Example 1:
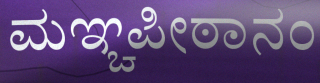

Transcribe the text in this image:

ಮಞ್ಚಪೀಠಾನಂ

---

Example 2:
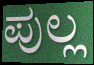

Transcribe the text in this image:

ಪುಲ್ಲ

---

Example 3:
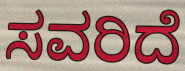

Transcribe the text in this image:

ಸವರಿದೆ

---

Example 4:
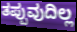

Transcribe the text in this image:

ತಪ್ಪುವುದಿಲ್ಲ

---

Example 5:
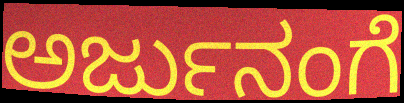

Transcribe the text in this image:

ಅರ್ಜುನಂಗೆ